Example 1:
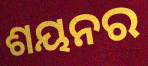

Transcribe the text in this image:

ଶୟନର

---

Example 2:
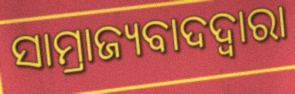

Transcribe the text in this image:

ସାମ୍ରାଜ୍ୟବାଦଦ୍ୱାରା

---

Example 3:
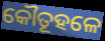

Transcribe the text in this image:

କୌତୂହଳେ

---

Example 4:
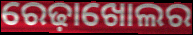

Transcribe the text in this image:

ରେଢ଼ାଖୋଲର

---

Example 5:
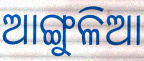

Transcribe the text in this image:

ଆଙ୍ଗୁଳିଆ